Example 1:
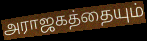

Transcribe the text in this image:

அராஜகத்தையும்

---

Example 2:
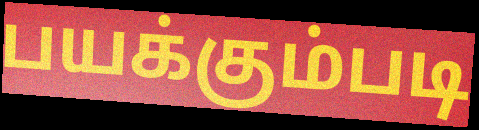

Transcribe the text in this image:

பயக்கும்படி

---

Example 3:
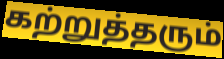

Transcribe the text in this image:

கற்றுத்தரும்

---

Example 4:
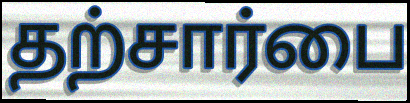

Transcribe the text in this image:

தற்சார்பை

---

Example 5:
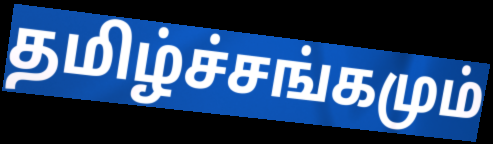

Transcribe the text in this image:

தமிழ்ச்சங்கமும்